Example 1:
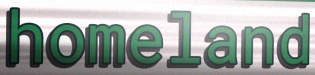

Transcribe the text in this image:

homeland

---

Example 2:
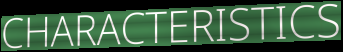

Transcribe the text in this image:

CHARACTERISTICS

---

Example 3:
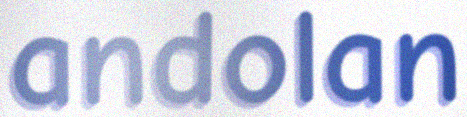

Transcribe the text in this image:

andolan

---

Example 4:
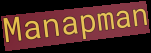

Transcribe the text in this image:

Manapman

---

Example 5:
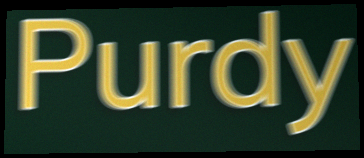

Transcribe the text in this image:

Purdy